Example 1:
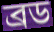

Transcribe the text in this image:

ব্রড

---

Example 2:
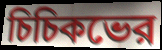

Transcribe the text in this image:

চিচিকভের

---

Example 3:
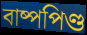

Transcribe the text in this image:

বাষ্পপিণ্ড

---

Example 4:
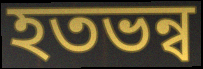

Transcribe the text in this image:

হতভন্ব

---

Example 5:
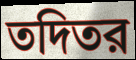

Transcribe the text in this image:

তদিতর